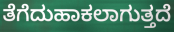
ತೆಗೆದುಹಾಕಲಾಗುತ್ತದೆ